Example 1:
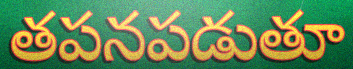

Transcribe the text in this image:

తపనపడుతూ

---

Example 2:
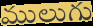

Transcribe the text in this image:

ములుగు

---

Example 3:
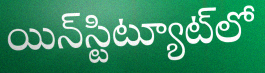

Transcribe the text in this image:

యిన్‌స్టిట్యూట్‌లో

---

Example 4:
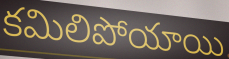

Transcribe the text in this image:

కమిలిపోయాయి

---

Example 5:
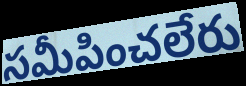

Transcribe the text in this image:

సమీపించలేరు